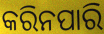
କରିନପାରି